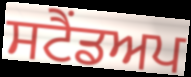
ਸਟੈਂਡਅਪ